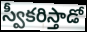
స్వీకరిస్తాడో